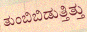
ತುಂಬಿಬಿಡುತ್ತಿತ್ತು